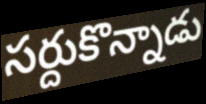
సర్దుకొన్నాడు